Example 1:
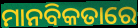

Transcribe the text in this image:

ମାନବିକତାରେ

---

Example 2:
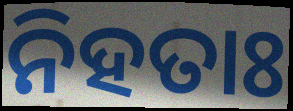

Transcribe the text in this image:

ନିହତାଃ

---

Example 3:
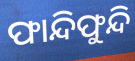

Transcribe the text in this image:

ଫାନ୍ଦିଫୁନ୍ଦି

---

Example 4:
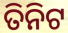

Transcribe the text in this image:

ତିନିଟ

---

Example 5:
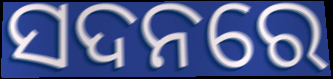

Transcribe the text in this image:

ସଦନରେ